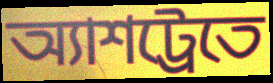
অ্যাশট্রেতে